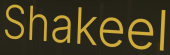
Shakeel